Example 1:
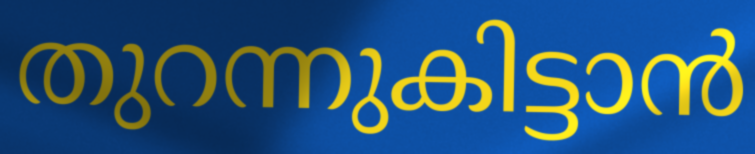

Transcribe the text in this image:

തുറന്നുകിട്ടാൻ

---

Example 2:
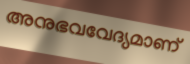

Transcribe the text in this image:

അനുഭവവേദ്യമാണ്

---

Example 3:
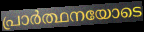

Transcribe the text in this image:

പ്രാർത്ഥനയോടെ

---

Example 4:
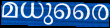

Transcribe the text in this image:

മധുരൈ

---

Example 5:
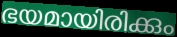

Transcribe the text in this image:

ഭയമായിരിക്കും